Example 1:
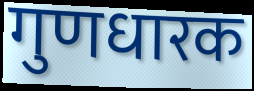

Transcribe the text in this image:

गुणधारक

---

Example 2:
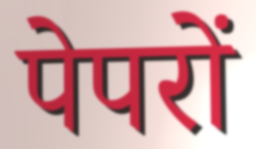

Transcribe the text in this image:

पेपरों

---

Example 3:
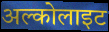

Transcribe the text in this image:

अल्कोलाइट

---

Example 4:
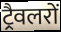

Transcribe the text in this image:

ट्रैवलरों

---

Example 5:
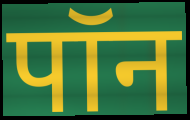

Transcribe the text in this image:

पॉन